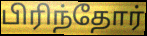
பிரிந்தோர்